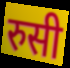
रुसी